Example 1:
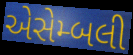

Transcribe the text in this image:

એસેમ્બલી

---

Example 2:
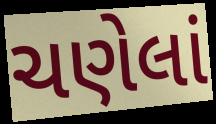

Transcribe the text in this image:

ચણેલાં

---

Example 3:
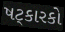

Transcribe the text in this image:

ષટ્કારકો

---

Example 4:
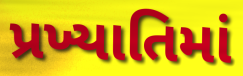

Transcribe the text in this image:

પ્રખ્યાતિમાં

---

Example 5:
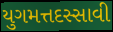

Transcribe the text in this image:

યુગમત્તદસ્સાવી